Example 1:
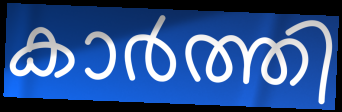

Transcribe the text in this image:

കാർത്തി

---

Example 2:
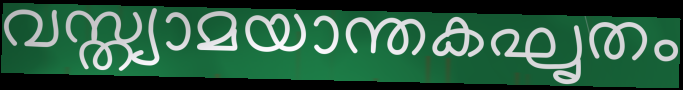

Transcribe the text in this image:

വസ്ത്യാമയാന്തകഘൃതം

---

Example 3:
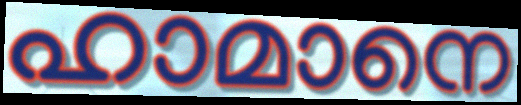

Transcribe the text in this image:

ഹാമാനെ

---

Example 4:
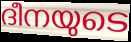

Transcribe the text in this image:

ദീനയുടെ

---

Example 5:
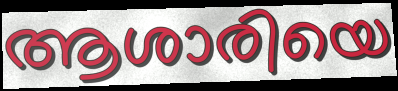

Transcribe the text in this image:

ആശാരിയെ